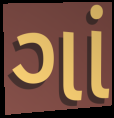
ગાં